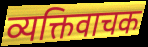
व्यक्तिवाचक